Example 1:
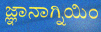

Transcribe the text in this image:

ಜ್ಞಾನಾಗ್ನಿಯಿಂ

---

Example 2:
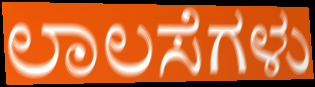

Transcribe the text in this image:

ಲಾಲಸೆಗಳು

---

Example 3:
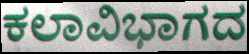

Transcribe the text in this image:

ಕಲಾವಿಭಾಗದ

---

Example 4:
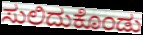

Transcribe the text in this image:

ಸುಲಿದುಕೊಂಡು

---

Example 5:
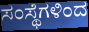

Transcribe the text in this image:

ಸಂಸ್ಥೆಗಳಿಂದ